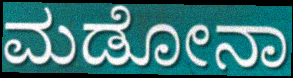
ಮಡೋನಾ